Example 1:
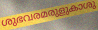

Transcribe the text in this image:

ശുഭവരമരുളുകാശു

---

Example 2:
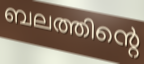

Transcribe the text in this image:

ബലത്തിന്റെ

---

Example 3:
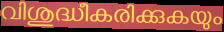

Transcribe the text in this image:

വിശുദ്ധീകരിക്കുകയും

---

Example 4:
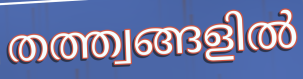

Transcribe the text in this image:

തത്ത്വങ്ങളിൽ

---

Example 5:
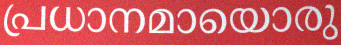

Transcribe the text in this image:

പ്രധാനമായൊരു